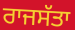
ਰਾਜਸੱਤਾ